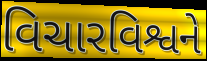
વિચારવિશ્વને